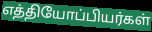
எத்தியோப்பியர்கள்